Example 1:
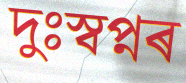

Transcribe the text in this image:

দুঃস্বপ্নৰ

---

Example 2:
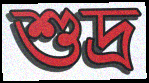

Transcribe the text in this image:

শুদ্ৰ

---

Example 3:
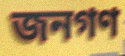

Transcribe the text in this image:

জনগণ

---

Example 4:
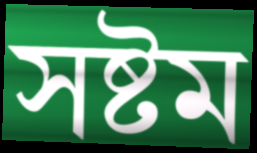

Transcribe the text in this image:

সষ্টম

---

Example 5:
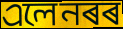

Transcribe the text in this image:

এলেনৰৰ